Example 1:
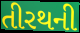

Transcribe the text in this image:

તીરથની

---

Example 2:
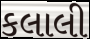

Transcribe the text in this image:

કલાલી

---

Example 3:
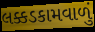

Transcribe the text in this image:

લક્કડકામવાળું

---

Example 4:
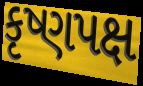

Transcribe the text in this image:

કૃષ્ણપક્ષ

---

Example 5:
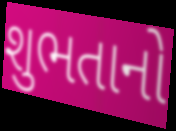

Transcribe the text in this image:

શુભતાનો